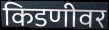
किडणीवर